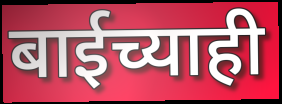
बाईच्याही